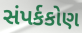
સંપર્કકોણ